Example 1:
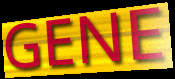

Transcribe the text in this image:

GENE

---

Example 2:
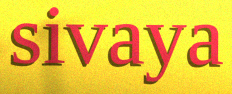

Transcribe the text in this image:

sivaya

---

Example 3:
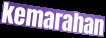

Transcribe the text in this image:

kemarahan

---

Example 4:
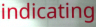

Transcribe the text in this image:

indicating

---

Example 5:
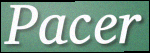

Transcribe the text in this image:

Pacer